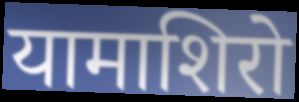
यामाशिरो